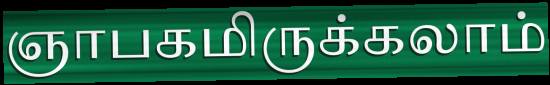
ஞாபகமிருக்கலாம்